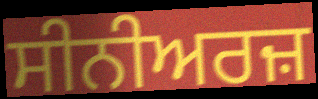
ਸੀਨੀਅਰਜ਼